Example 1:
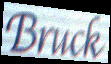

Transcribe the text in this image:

Bruck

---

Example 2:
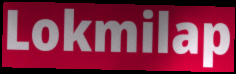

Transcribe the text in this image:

Lokmilap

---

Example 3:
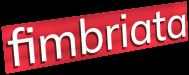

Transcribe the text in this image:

fimbriata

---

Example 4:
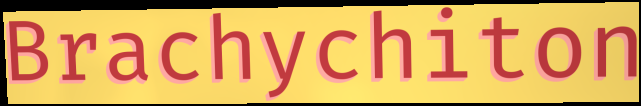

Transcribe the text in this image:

Brachychiton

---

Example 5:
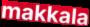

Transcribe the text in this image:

makkala